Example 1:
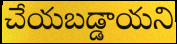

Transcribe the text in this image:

చేయబడ్డాయని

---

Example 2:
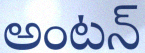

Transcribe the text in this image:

అంటన్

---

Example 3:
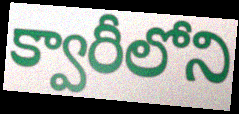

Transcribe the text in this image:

క్వారీలోని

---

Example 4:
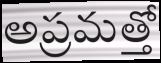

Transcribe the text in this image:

అప్రమత్తో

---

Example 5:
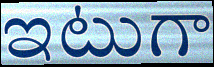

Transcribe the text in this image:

ఇటుగా